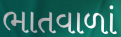
ભાતવાળાં